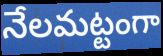
నేలమట్టంగా